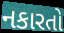
નકારતો